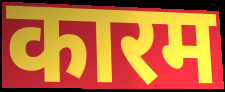
कारम